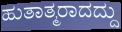
ಹುತಾತ್ಮರಾದದ್ದು